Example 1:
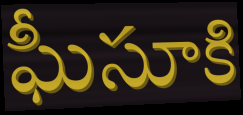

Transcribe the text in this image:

ఘీసూకి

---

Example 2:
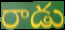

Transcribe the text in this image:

రాడు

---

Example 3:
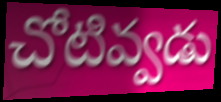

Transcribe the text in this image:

చోటివ్వడు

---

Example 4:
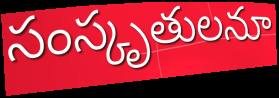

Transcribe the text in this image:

సంస్కృతులనూ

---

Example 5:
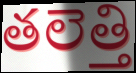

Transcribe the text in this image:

తలెత్తి